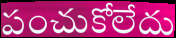
పంచుకోలేదు